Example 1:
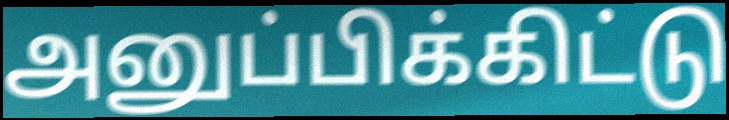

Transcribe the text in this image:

அனுப்பிக்கிட்டு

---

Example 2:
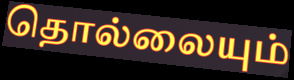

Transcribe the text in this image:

தொல்லையும்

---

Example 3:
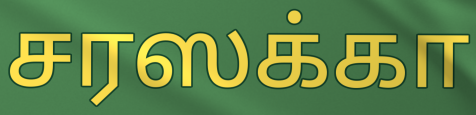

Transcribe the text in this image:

சரஸக்கா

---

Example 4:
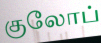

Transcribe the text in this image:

குலோப்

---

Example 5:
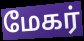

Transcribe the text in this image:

மேகர்